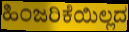
ಹಿಂಜರಿಕೆಯಿಲ್ಲದ